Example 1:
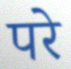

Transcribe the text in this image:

परे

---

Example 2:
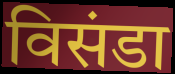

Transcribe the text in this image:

विसंडा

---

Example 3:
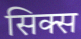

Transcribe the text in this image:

सिक्स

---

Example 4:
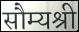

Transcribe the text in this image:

सौम्यश्री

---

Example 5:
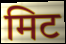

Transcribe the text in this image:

मिट